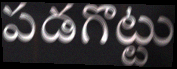
పడగొట్టు